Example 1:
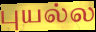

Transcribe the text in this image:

புயல்ல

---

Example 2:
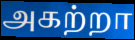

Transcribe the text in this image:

அகற்றா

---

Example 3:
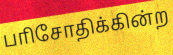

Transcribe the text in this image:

பரிசோதிக்கின்ற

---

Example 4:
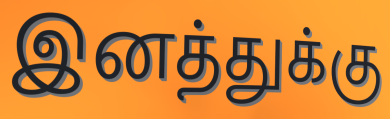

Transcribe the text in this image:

இனத்துக்கு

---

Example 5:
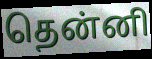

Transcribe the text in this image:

தென்னி